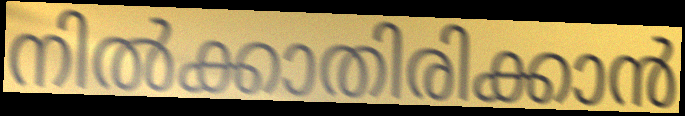
നിൽക്കാതിരിക്കാൻ